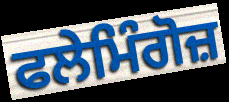
ਫਲੇਮਿੰਗੋਜ਼